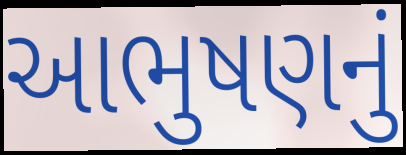
આભુષણનું